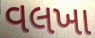
વલખા